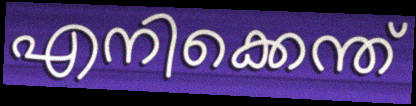
എനിക്കെന്ത്